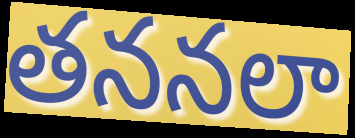
తననలా